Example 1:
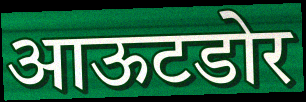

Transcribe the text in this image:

आऊटडोर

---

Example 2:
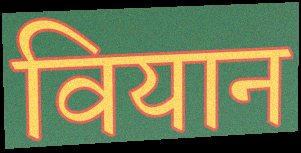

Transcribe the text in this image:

वियान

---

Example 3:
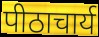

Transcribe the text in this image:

पीठाचार्य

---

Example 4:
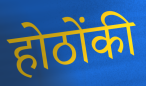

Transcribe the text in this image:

होठोंकी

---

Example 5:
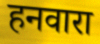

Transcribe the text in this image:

हनवारा